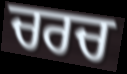
ਚਰਚ